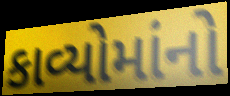
કાવ્યોમાંનો